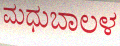
ಮಧುಬಾಲಳ